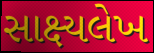
સાક્ષ્યલેખ